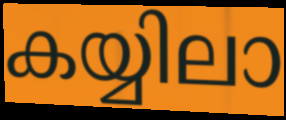
കയ്യിലാ